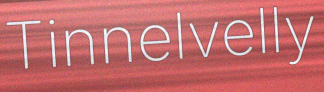
Tinnelvelly